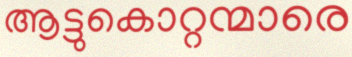
ആട്ടുകൊറ്റന്മാരെ